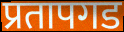
प्रतापगड